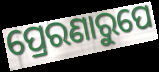
ପ୍ରେରଣାରୁପେ